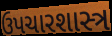
ઉપચારશાસ્ત્ર